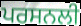
ਪਰਸਨਲੀ